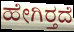
ಹೇಗಿರ್‍ತದೆ